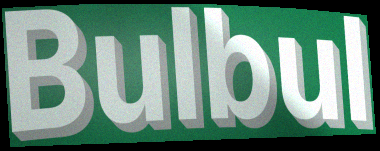
Bulbul